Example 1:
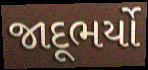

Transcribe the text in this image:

જાદૂભર્યો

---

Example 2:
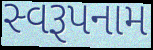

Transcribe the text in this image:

સ્વરૂપનામ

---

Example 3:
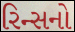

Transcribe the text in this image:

રિન્સનો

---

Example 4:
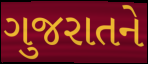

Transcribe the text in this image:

ગુજરાતને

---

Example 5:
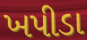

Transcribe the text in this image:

ખપીડા